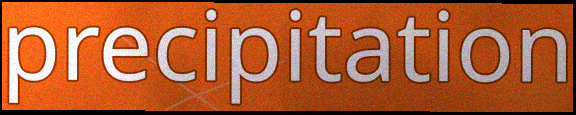
precipitation